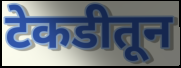
टेकडीतून